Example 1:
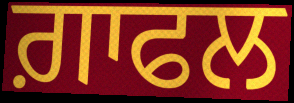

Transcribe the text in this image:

ਗ਼ਾਫਲ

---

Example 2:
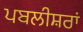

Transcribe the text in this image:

ਪਬਲੀਸ਼ਰਾਂ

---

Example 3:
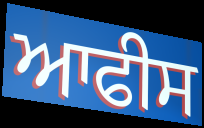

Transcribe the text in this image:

ਆਫੀਸ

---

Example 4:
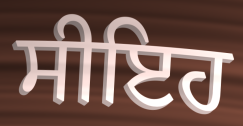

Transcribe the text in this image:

ਸੀਇਹ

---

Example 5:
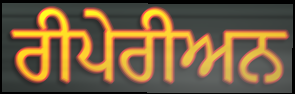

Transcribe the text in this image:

ਰੀਪੇਰੀਅਨ